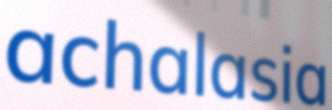
achalasia